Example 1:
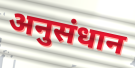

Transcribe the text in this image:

अनुसंधान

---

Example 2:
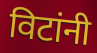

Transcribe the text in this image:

विटांनी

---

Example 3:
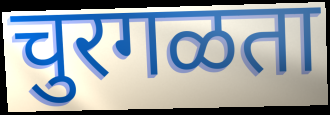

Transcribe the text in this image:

चुरगळता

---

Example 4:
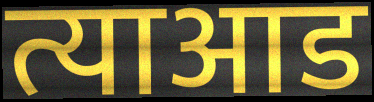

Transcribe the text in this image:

त्याआड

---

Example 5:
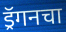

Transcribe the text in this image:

ड्रॅगनचा